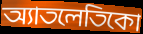
অ্যাতলেতিকো